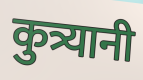
कुत्र्यानी